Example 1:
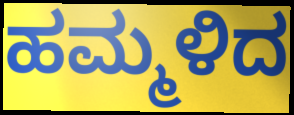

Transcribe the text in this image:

ಹಮ್ಮಳಿದ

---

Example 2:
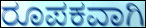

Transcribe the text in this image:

ರೂಪಕವಾಗಿ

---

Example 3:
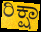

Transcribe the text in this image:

ರಿಕ್ಷಾ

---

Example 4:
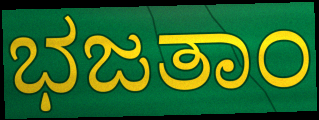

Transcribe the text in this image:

ಭಜತಾಂ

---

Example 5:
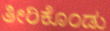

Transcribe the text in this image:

ತೀರಿಕೊಂಡು